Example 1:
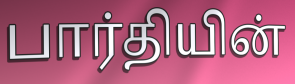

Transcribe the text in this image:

பார்தியின்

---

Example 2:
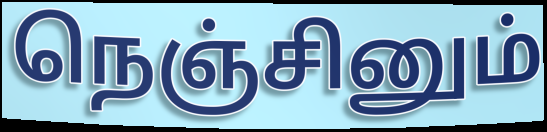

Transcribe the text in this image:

நெஞ்சினும்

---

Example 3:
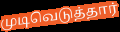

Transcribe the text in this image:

முடிவெடுத்தார்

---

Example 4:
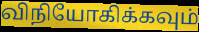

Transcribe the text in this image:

விநியோகிக்கவும்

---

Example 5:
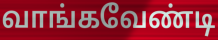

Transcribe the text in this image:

வாங்கவேண்டி